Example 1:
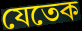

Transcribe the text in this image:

যেতেক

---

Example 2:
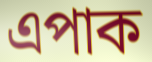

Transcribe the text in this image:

এপাক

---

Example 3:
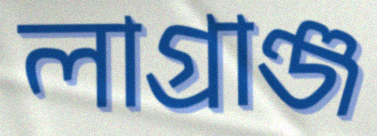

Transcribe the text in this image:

লাগ্ৰাঞ্জ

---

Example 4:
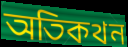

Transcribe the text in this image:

অতিকথন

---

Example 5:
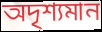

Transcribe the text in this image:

অদৃশ্যমান